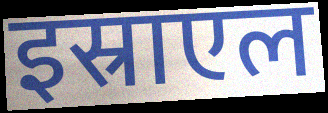
इस्राएल